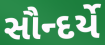
સૌન્દર્યે